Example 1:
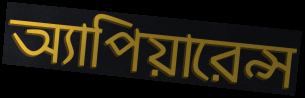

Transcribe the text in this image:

অ্যাপিয়ারেন্স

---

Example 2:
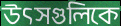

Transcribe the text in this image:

উৎসগুলিকে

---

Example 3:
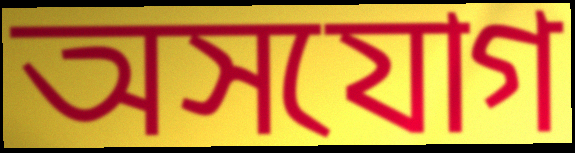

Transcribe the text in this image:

অসযোগ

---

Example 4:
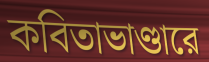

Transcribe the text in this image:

কবিতাভাণ্ডারে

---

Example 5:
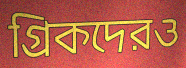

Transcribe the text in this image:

গ্রিকদেরও